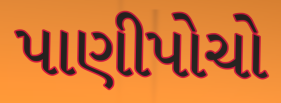
પાણીપોચો